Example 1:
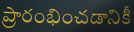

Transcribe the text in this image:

ప్రారంభించడానికీ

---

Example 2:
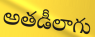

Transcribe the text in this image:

అతడీలాగు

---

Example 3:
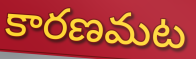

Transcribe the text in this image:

కారణమట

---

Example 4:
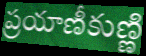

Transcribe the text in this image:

ప్రయాణీకుణ్ణి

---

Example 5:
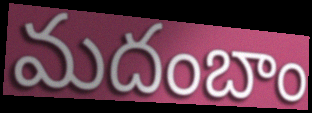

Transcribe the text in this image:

మదంబాం